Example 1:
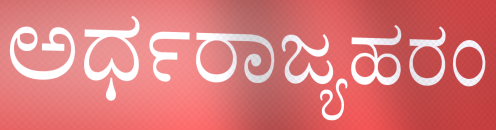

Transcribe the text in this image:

ಅರ್ಧರಾಜ್ಯಹರಂ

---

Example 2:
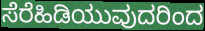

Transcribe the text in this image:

ಸೆರೆಹಿಡಿಯುವುದರಿಂದ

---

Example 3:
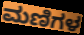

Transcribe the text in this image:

ಮಣಿಗಳ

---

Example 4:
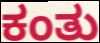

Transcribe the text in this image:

ಕಂತು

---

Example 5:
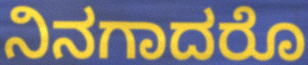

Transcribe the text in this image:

ನಿನಗಾದರೊ